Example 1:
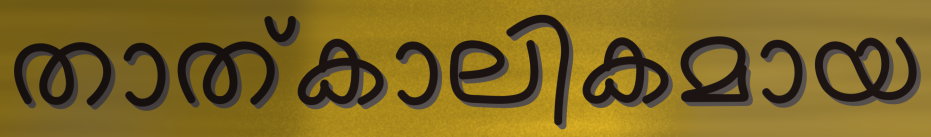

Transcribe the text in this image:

താത്കാലികമായ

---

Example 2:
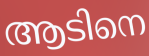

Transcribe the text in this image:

ആടിനെ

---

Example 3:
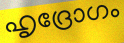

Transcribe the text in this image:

ഹൃദ്രോഗം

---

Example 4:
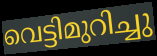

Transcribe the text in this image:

വെട്ടിമുറിച്ചു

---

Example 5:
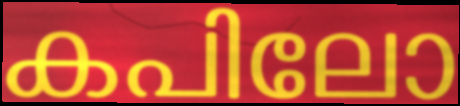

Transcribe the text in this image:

കപിലോ